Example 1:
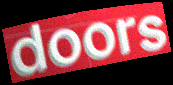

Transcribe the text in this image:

doors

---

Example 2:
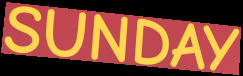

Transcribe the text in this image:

SUNDAY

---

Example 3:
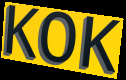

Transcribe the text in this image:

KOK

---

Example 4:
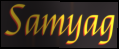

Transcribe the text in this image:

Samyag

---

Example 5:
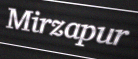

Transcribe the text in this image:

Mirzapur